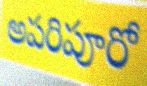
అపరిపూరో